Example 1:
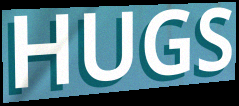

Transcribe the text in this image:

HUGS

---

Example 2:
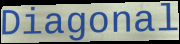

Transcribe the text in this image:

Diagonal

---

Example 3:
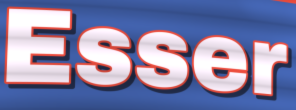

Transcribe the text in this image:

Esser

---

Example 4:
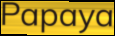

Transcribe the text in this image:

Papaya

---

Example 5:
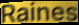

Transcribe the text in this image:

Raines